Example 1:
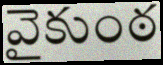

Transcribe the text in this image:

వైకుంఠ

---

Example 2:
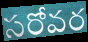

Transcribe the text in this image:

సరోవర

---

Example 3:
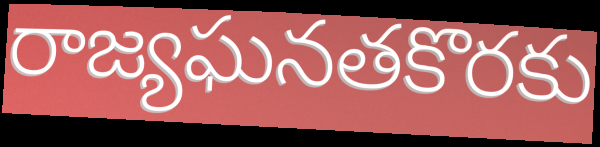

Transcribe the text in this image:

రాజ్యఘనతకొరకు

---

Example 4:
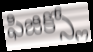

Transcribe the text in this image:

ఫిజిక్స్లో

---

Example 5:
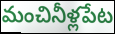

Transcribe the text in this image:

మంచినీళ్లపేట